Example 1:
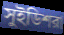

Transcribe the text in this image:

সুইডিশরা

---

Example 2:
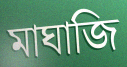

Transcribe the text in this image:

মাঘাজি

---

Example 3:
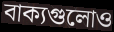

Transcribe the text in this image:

বাক্যগুলোও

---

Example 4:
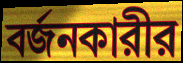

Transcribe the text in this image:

বর্জনকারীর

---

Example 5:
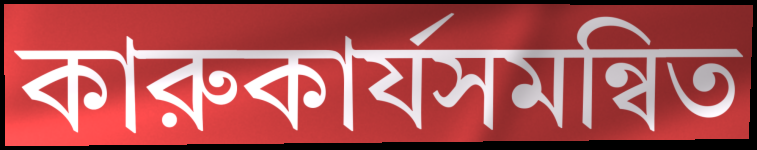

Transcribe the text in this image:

কারুকার্যসমন্বিত